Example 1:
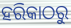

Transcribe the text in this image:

ହରିକାଠରୁ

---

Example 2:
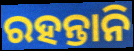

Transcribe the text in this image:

ରହନ୍ତାନି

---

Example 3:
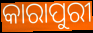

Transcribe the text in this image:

କାରାପୁରୀ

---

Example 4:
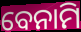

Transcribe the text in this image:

ବେନାମି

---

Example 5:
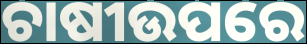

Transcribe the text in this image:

ଚାଷୀଉପରେ